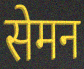
सेमन